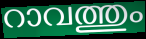
റാവത്തും